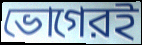
ভোগেরই